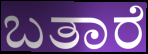
ಬತಾರೆ